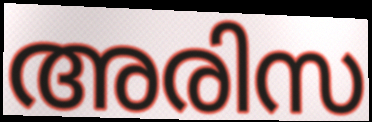
അരിസ